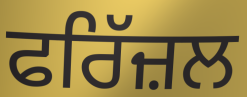
ਫਰਿੱਜ਼ਲ